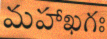
మహాఖగః